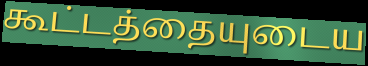
கூட்டத்தையுடைய